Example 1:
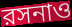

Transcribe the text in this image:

রসনাও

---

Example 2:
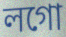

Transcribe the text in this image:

লগো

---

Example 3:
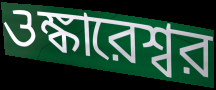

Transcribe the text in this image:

ওঙ্কারেশ্বর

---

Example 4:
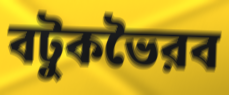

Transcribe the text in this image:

বটুকভৈরব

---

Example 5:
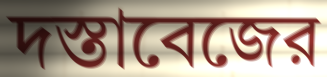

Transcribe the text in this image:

দস্তাবেজের